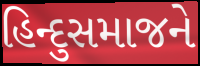
હિન્દુસમાજને